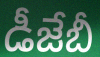
డీజేబీ